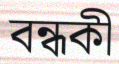
বন্ধকী